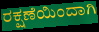
ರಕ್ಷಣೆಯಿಂದಾಗಿ